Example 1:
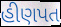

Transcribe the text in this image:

હીણપત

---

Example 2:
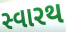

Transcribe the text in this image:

સ્વારથ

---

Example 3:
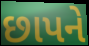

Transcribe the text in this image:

છાપને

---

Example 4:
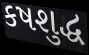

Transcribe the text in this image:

કષશુદ્ધ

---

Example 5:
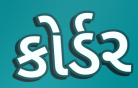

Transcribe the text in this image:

કોર્ડર